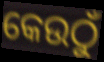
କେଉଠୁଁ